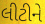
લીટીને